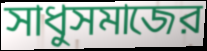
সাধুসমাজের